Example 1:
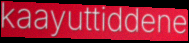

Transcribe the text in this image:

kaayuttiddene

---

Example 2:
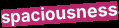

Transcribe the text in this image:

spaciousness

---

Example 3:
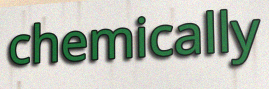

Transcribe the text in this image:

chemically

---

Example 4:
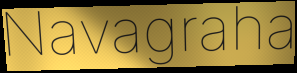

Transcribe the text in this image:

Navagraha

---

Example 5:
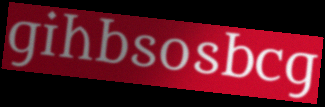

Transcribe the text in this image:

gihbsosbcg